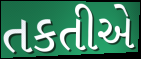
તકતીએ